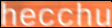
hecchu